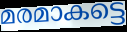
മരമാകട്ടെ